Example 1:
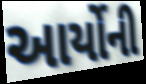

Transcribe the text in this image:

આર્યોની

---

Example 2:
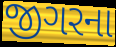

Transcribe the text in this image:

જીગરના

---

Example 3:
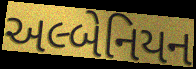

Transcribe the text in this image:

અલ્બેનિયન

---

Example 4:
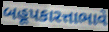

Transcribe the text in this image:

બહૂપકારત્તાભાવે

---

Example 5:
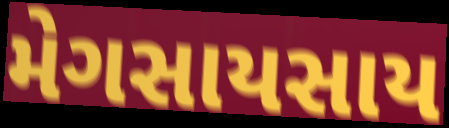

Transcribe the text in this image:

મેગસાયસાય